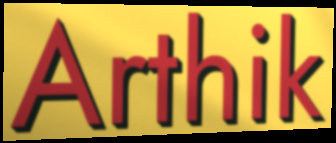
Arthik